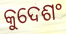
କୁଦେଶଂ